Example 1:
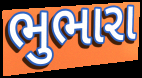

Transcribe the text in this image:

ભુભારા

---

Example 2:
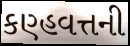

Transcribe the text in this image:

કણ્હવત્તની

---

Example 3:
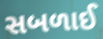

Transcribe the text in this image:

સબળાઈ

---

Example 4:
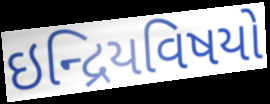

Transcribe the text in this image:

ઇન્દ્રિયવિષયો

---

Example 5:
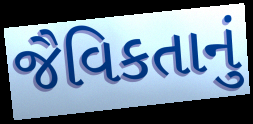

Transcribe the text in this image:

જૈવિકતાનું